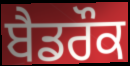
ਬੈਡਰੌਕ